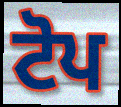
ਟੋਪ